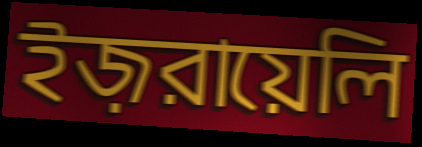
ইজ়রায়েলি